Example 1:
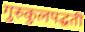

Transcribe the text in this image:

गुरुकुलपद्धती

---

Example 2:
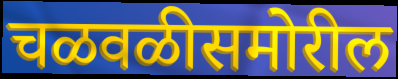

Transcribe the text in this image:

चळवळीसमोरील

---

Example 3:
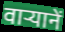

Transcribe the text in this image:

वार्‍यानें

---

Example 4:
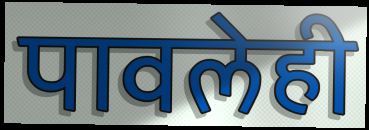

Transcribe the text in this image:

पावलेही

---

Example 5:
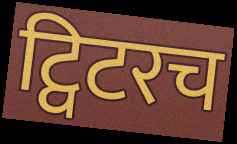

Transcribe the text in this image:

ट्विटरच